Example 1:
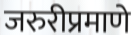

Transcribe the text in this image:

जरुरीप्रमाणे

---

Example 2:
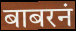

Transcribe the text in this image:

बाबरनं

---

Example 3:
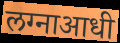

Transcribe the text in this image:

लग्नाआधी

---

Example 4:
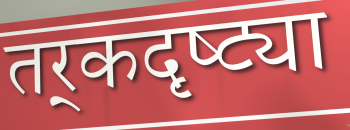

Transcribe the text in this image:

तर्कदृष्ट्या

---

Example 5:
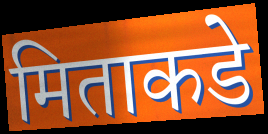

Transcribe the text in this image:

मिताकडे